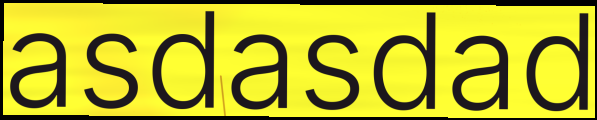
asdasdad